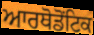
ਆਰਥੋਡੋਂਟਿਕ